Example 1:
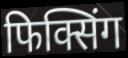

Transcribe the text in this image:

फिक्सिंग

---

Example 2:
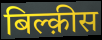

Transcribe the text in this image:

बिल्क़ीस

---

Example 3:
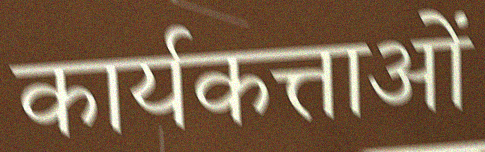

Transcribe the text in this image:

कार्यकत्ताओं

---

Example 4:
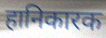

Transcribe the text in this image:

हानिकारक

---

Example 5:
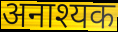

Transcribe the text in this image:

अनाश्यक